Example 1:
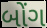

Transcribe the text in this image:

બોંગ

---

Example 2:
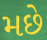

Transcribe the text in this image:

મછે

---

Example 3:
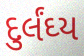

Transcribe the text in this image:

દુર્લંઘ્ય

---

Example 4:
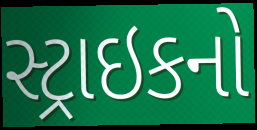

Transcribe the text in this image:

સ્ટ્રાઇકનો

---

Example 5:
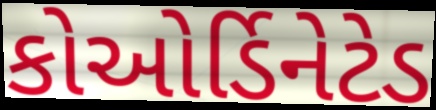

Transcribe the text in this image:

કોઓર્ડિનેટેડ